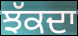
ਝੱਕਦਾ